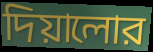
দিয়ালোর